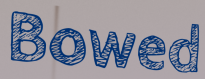
Bowed